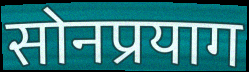
सोनप्रयाग